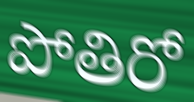
పోతిరో